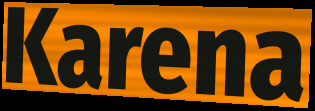
Karena